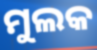
ମୁଲକ